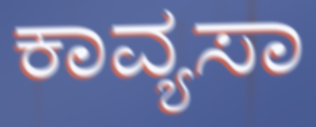
ಕಾವ್ಯಸಾ